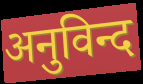
अनुविन्द